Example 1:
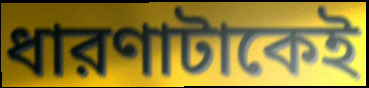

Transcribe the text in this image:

ধারণাটাকেই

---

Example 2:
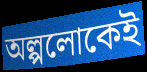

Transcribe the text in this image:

অল্পলোকেই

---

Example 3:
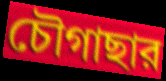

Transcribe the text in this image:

চৌগাছার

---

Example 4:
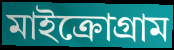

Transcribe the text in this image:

মাইক্রোগ্রাম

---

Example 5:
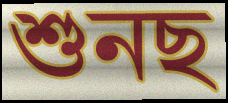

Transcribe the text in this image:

শুনছ